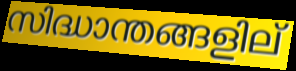
സിദ്ധാന്തങ്ങളില്